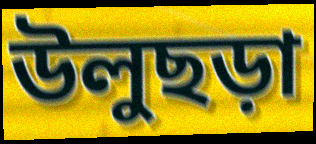
উলুছড়া